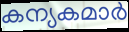
കന്യകമാർ